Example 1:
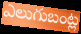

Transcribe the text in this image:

ఎలుగుబంట్ల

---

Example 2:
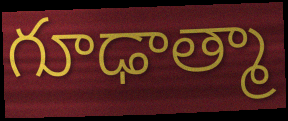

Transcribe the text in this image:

గూఢాత్మా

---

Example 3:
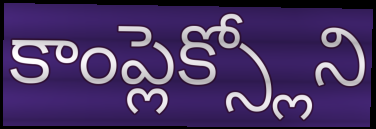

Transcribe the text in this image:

కాంప్లెక్స్లోని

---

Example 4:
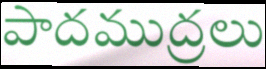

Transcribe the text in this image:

పాదముద్రలు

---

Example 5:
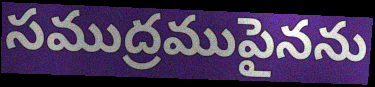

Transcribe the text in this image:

సముద్రముపైనను